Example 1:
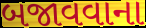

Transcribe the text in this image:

બજાવવાના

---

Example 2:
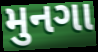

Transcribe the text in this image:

મુનગા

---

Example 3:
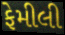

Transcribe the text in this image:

ફેમીલી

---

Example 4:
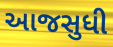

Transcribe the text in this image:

આજસુધી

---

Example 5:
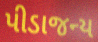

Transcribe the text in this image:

પીડાજન્ય